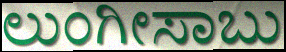
ಲುಂಗೀಸಾಬು